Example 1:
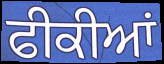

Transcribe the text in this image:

ਫੀਕੀਆਂ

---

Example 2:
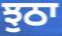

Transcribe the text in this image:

ਝੁਠਾ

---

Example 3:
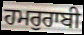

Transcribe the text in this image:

ਹਮਰੁਰਾਬੀ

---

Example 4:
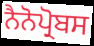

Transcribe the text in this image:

ਨੈਨੋਪ੍ਰੋਬਸ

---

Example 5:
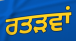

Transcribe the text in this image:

ਰਤੜਵਾਂ